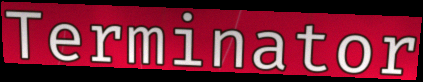
Terminator